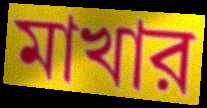
মাখার